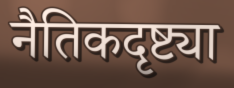
नैतिकदृष्ट्या